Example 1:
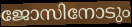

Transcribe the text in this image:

ജോസിനോടും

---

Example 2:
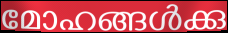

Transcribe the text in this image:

മോഹങ്ങൾക്കു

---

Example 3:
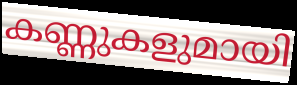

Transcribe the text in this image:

കണ്ണുകളുമായി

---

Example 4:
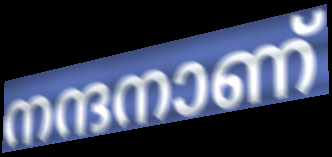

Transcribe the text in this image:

നന്ദനാണ്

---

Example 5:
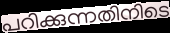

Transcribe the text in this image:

പറിക്കുന്നതിനിടെ